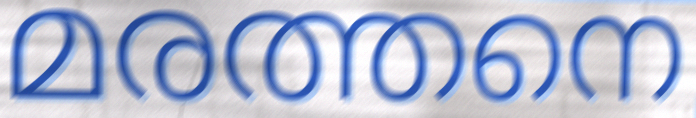
മരത്തനെ